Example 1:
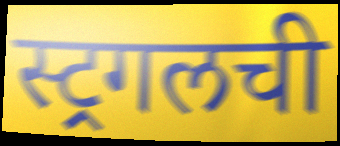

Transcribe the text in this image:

स्ट्रगलची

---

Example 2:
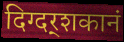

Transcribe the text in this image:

दिग्दर्शकानं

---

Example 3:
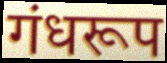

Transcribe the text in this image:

गंधरूप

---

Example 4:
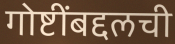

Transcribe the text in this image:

गोष्टींबद्दलची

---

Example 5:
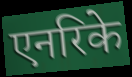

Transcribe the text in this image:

एनरिके